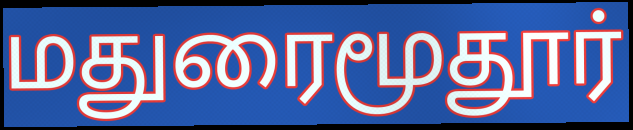
மதுரைமூதூர்